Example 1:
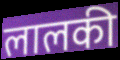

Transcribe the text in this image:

लालकी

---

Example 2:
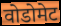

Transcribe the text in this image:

वोडोमेट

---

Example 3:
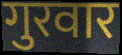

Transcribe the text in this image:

गुरवार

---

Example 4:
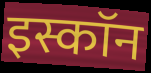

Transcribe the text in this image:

इस्कॉन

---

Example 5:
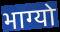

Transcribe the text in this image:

भाग्यो